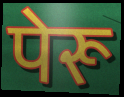
पेरू